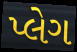
પ્લેગ